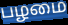
பழமை